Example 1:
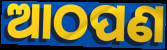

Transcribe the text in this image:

ଆଠପଣ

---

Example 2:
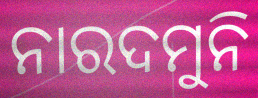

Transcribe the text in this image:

ନାରଦମୁନି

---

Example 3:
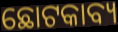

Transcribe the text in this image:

ଛୋଟକାବ୍ୟ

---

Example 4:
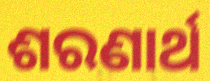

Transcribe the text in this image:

ଶରଣାର୍ଥ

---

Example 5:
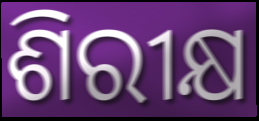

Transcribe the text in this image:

ଶିରୀକ୍ଷ